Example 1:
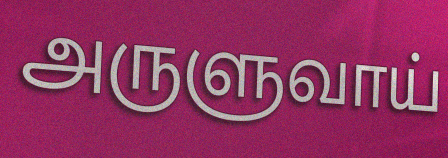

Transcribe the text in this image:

அருளுவாய்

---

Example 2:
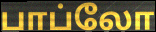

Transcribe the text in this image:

பாப்லோ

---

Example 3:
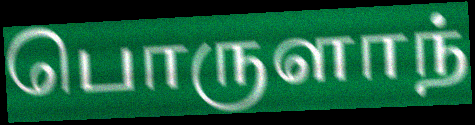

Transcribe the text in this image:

பொருளாந்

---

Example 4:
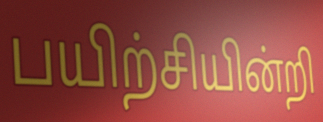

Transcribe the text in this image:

பயிற்சியின்றி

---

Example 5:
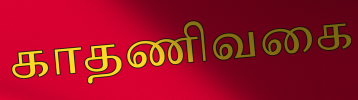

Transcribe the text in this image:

காதணிவகை